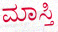
ಮಾಸ್ತಿ